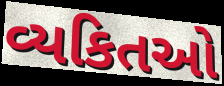
વ્યકિતઓ